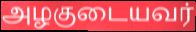
அழகுடையவர்